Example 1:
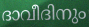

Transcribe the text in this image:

ദാവീദിനും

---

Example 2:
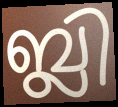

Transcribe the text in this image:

ബ്ലി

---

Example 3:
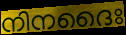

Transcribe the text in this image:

നിനദൈഃ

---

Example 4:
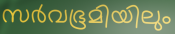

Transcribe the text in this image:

സർവഭൂമിയിലും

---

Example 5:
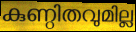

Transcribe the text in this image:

കുണ്ഠിതവുമില്ല